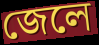
জেলে